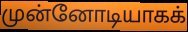
முன்னோடியாகக்